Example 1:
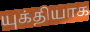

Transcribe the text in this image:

யுக்தியாக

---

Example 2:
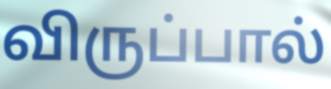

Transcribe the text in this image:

விருப்பால்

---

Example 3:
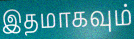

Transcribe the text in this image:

இதமாகவும்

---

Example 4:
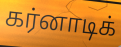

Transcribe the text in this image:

கர்னாடிக்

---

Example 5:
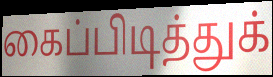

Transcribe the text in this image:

கைப்பிடித்துக்